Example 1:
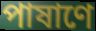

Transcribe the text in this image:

পাষাণে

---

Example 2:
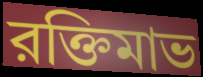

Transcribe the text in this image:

রক্তিমাভ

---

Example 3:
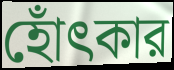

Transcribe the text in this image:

হোঁৎকার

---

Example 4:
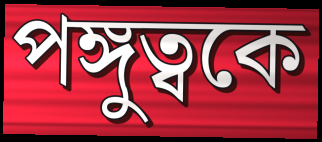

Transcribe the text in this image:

পঙ্গুত্বকে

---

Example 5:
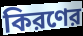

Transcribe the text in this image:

কিরণের